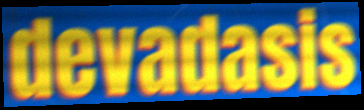
devadasis